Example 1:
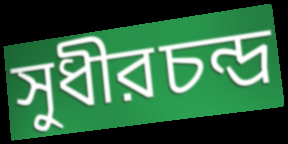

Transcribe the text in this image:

সুধীরচন্দ্র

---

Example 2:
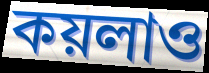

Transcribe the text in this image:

কয়লাও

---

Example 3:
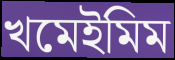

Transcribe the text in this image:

খমেইমিম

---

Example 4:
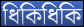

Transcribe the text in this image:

ধিকিধিকি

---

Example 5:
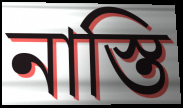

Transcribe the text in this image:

নাস্তি